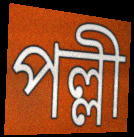
পল্লী